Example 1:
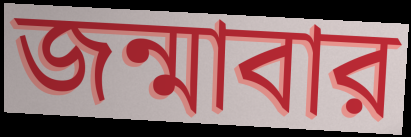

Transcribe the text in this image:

জন্মাবার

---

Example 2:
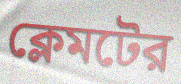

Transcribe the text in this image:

ক্লেমটের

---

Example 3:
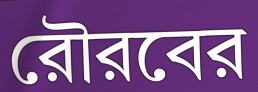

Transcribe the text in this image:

রৌরবের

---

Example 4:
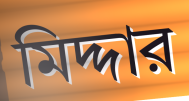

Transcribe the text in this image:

মিদ্দার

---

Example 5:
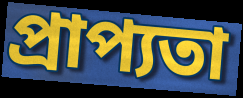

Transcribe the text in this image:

প্রাপ্যতা